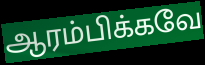
ஆரம்பிக்கவே